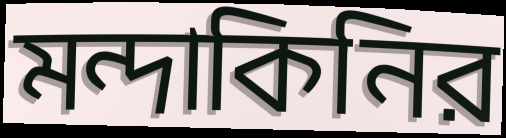
মন্দাকিনির